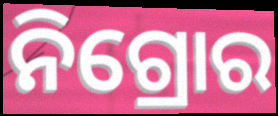
ନିଗ୍ରୋର